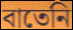
বাতেনি